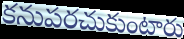
కనుపరచుకుంటారు